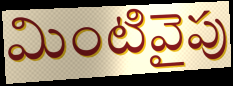
మింటివైపు